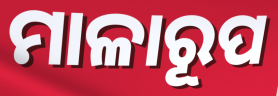
ମାଳାରୂପ